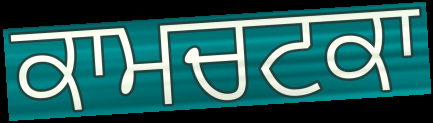
ਕਾਮਚਟਕਾ